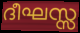
ദീഘസ്സ